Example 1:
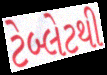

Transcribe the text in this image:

ટેબ્લેટથી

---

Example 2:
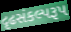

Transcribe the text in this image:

દૃઢસંકલ્પરૂપ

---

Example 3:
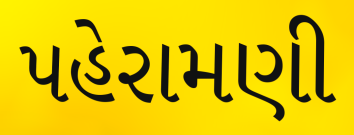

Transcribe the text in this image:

પહેરામણી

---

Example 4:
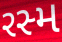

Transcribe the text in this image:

રસ્મ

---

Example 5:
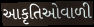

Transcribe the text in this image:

આકૃતિઓવાળી